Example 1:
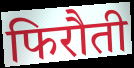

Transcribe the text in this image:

फिरौती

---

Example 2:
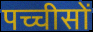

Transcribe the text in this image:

पच्चीसों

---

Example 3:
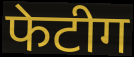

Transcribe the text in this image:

फेटीग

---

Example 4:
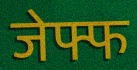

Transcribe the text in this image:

जेफ्फ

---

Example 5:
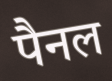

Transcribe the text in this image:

पैनल